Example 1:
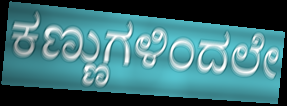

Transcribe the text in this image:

ಕಣ್ಣುಗಳಿಂದಲೇ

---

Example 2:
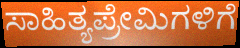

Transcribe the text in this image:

ಸಾಹಿತ್ಯಪ್ರೇಮಿಗಳಿಗೆ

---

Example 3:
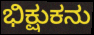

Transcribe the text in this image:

ಭಿಕ್ಷುಕನು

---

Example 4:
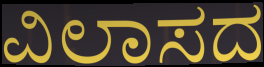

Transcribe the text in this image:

ವಿಲಾಸದ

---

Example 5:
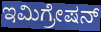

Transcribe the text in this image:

ಇಮಿಗ್ರೇಷನ್